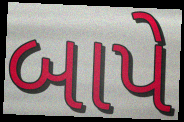
બાપે